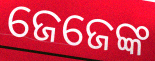
ଜେଜେଙ୍କ